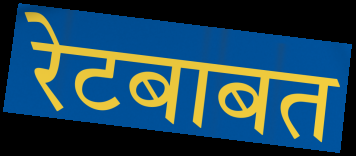
रेटबाबत